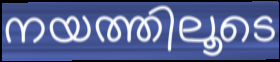
നയത്തിലൂടെ